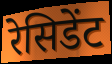
रेसिडेंट